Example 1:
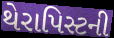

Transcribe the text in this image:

થેરાપિસ્ટની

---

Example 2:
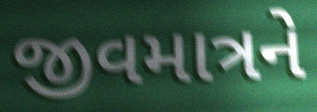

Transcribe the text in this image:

જીવમાત્રને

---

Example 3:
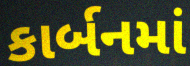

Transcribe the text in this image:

કાર્બનમાં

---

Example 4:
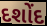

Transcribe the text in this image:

દશોંદ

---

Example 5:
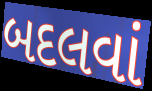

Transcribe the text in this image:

બદલવાં